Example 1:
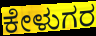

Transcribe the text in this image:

ಕೇಳುಗರ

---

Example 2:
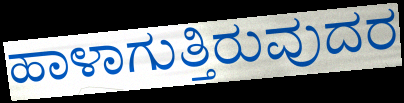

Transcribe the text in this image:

ಹಾಳಾಗುತ್ತಿರುವುದರ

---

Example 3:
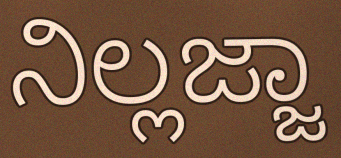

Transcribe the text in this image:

ನಿಲ್ಲಜ್ಜಾ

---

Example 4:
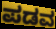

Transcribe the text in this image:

ಪಡವ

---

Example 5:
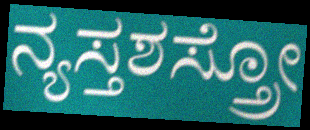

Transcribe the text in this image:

ನ್ಯಸ್ತಶಸ್ತ್ರೋ